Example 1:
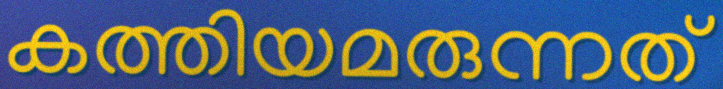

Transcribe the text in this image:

കത്തിയമരുന്നത്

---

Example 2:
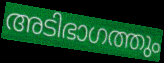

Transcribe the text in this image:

അടിഭാഗത്തും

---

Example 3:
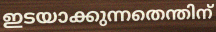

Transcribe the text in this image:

ഇടയാക്കുന്നതെന്തിന്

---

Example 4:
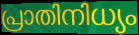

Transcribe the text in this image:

പ്രാതിനിധ്യം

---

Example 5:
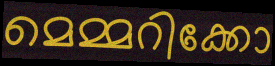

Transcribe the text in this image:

മെമ്മറിക്കോ